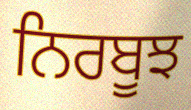
ਨਿਰਬੂਝ